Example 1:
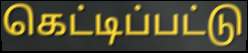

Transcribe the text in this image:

கெட்டிப்பட்டு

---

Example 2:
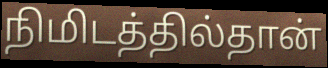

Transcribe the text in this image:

நிமிடத்தில்தான்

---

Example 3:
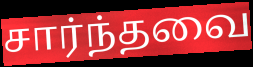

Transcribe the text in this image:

சார்ந்தவை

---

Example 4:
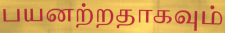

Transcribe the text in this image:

பயனற்றதாகவும்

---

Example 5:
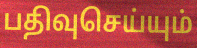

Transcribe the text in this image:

பதிவுசெய்யும்